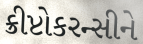
ક્રીપ્ટોકરન્સીને